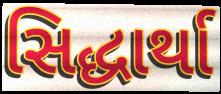
સિદ્ધાર્થા